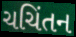
ચચિંતન